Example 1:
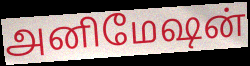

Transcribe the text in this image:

அனிமேஷன்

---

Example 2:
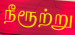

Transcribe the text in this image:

நீரூற்று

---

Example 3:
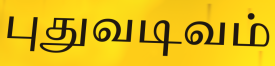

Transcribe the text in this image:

புதுவடிவம்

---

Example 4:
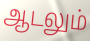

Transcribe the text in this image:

ஆடலும்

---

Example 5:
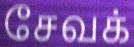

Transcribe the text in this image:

சேவக்